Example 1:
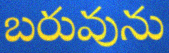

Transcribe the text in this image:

బరువును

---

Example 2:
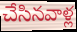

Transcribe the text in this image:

చేసినవాళ్ల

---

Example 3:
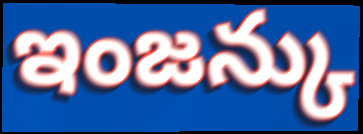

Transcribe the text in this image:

ఇంజన్కు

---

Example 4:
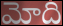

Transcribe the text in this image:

మోది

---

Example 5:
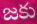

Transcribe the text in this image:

జకు